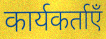
कार्यकर्ताएँ